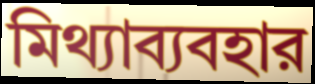
মিথ্যাব্যবহার